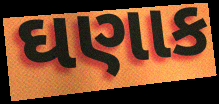
ઘણાક